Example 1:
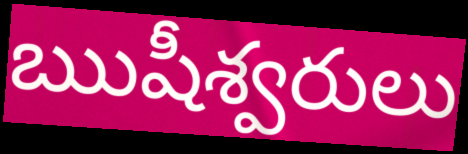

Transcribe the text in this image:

ఋషీశ్వరులు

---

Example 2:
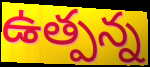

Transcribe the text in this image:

ఉత్పన్న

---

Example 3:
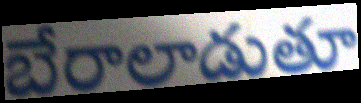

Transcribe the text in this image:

బేరాలాడుతూ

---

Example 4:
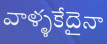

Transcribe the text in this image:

వాళ్ళకేదైనా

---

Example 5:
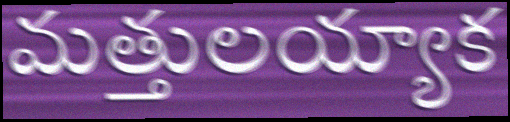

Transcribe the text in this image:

మత్తులయ్యాక